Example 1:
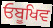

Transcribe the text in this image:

ਓਬੂਖਿਵ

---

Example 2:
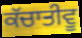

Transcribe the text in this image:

ਕੱਚਾਤੀਵੂ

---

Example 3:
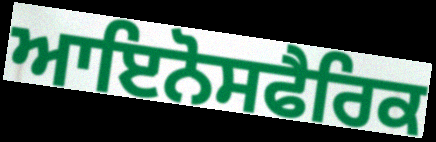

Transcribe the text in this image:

ਆਇਨੋਸਫੈਰਿਕ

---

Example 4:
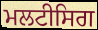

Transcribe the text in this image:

ਮਲਟੀਸਿਗ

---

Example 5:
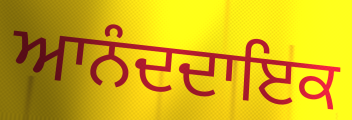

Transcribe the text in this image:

ਆਨੰਦਦਾਇਕ